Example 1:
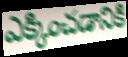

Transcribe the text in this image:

ఎక్కించడానికి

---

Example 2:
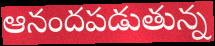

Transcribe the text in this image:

ఆనందపడుతున్న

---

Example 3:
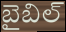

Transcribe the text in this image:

బైబిల్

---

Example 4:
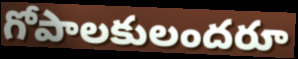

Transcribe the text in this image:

గోపాలకులందరూ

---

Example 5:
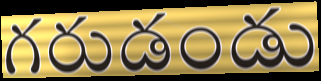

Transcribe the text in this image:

గరుడండు